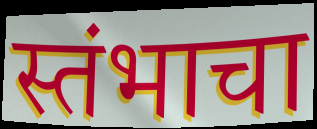
स्तंभाचा